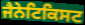
ਜੈਨੇਟਿਕਿਸਟ